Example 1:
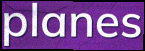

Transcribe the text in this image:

planes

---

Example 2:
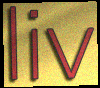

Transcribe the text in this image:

liv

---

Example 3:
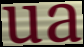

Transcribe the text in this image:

ua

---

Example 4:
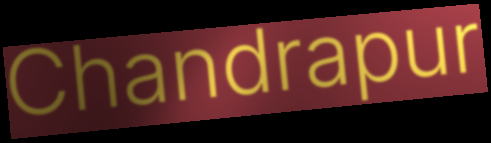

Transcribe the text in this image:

Chandrapur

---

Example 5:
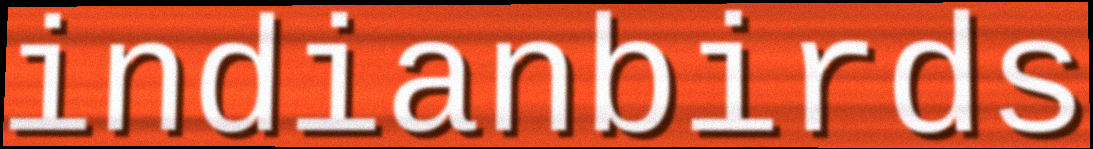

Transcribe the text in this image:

indianbirds